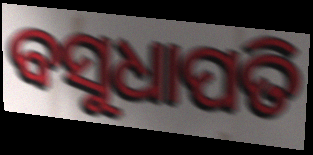
ବସୁଧାପତି